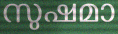
സുഷമാ